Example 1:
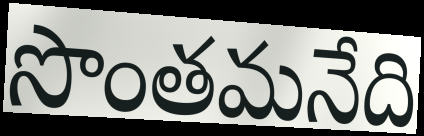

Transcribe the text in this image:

సొంతమనేది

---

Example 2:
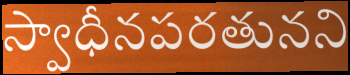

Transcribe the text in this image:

స్వాధీనపరతునని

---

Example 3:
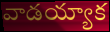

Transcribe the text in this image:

వాడయ్యాక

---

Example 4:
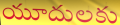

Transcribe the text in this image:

యూదులకు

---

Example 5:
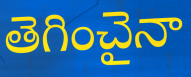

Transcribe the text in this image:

తెగించైనా